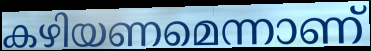
കഴിയണമെന്നാണ്